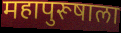
महापुरूषाला